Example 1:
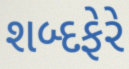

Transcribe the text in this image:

શબ્દફેરે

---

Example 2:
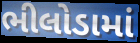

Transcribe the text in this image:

ભીલોડામાં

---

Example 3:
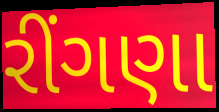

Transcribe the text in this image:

રીંગણા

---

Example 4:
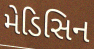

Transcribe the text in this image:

મેડિસિન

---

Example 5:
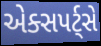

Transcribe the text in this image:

એક્સપર્ટ્સે